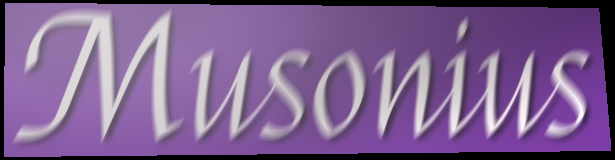
Musonius